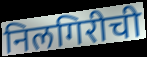
निलगिरीची